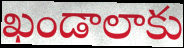
ఖండాలాకు